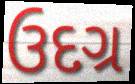
ઉદગ્ર